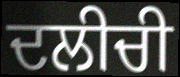
ਦਲੀਚੀ